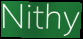
Nithy